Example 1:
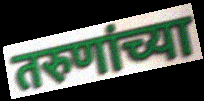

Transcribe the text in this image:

तरुणांच्या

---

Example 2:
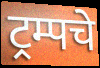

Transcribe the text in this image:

ट्रम्पचे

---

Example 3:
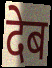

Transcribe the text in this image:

देब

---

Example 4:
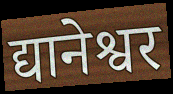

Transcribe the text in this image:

द्यानेश्वर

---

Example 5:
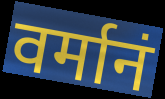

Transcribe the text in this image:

वर्मानं